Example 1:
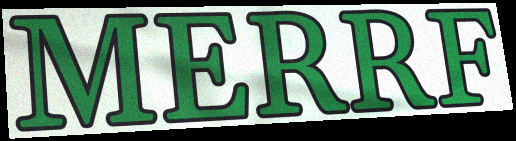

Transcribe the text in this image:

MERRF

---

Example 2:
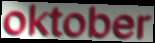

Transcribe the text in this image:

oktober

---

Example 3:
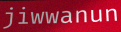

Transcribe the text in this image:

jiwwanun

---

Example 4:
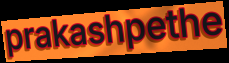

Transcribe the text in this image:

prakashpethe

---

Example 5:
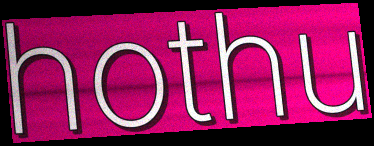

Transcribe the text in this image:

hothu